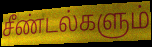
சீண்டல்களும்